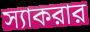
স্যাকরার